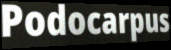
Podocarpus